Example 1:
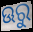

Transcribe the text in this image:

ଊରୁ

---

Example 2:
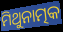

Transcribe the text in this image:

ମିଥୁନାତ୍ମକ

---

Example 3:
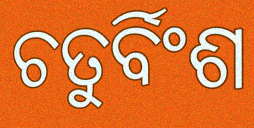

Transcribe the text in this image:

ଚତୁର୍ବିଂଶ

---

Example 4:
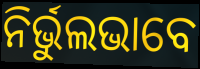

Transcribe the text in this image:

ନିର୍ଭୁଲଭାବେ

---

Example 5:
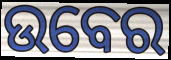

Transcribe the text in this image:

ଉବେର